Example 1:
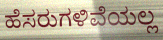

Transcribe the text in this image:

ಹೆಸರುಗಳಿವೆಯಲ್ಲ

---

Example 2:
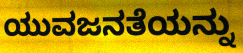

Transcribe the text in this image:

ಯುವಜನತೆಯನ್ನು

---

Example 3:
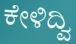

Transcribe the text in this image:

ಕೇಳಿದ್ವಿ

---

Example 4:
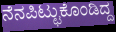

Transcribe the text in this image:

ನೆನಪಿಟ್ಟುಕೊಂಡಿದ್ದ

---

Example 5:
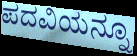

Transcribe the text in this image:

ಪದವಿಯನ್ನೂ